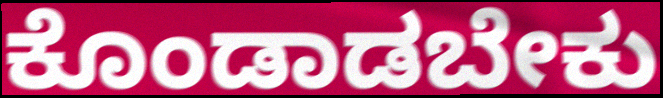
ಕೊಂಡಾಡಬೇಕು